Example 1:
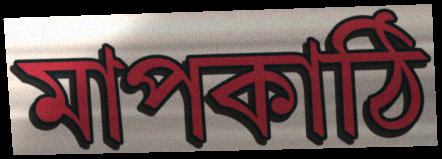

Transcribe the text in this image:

মাপকাঠি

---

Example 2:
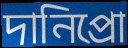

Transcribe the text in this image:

দানিপ্রো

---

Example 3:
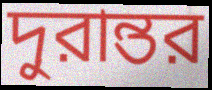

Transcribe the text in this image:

দুরান্তর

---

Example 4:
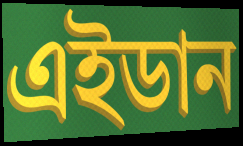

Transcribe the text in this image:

এইডান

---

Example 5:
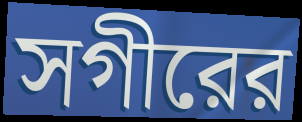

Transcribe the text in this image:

সগীরের